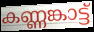
കണ്ണങ്കാട്ട്